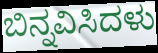
ಬಿನ್ನವಿಸಿದಳು